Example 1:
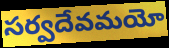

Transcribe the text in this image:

సర్వదేవమయో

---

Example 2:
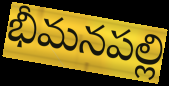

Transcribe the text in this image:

భీమనపల్లి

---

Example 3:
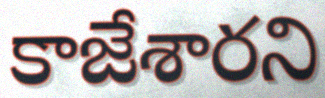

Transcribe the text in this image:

కాజేశారని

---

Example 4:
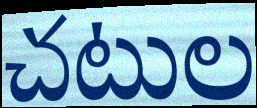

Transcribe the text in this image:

చటుల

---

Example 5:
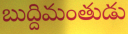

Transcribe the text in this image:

బుద్దిమంతుడు